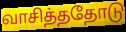
வாசித்ததோடு